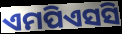
ଏମପିଏସସି